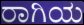
ರಾಗಿಯ